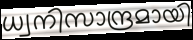
ധ്വനിസാന്ദ്രമായി